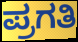
ಪ್ರಗತಿ